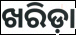
ଖରିଡ଼ା